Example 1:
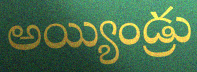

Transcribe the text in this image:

అయ్యిండ్రు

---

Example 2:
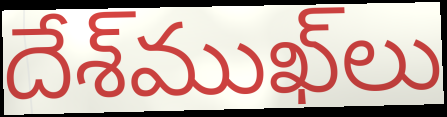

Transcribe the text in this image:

దేశ్‌ముఖ్‌లు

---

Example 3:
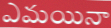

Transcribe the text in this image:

ఎమయినా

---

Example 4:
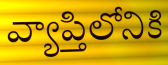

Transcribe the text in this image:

వ్యాప్తిలోనికి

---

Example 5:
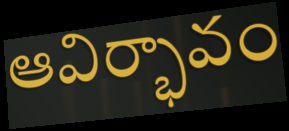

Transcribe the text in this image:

ఆవిర్భావం